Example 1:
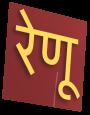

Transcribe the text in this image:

रेणू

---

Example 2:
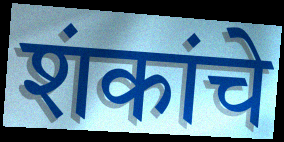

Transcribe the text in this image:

शंकांचे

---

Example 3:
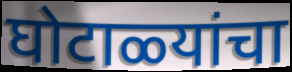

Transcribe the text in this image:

घोटाळ्यांचा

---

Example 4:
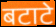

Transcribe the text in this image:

बटाटे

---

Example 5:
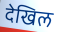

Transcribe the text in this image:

देखिल